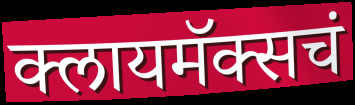
क्लायमॅक्सचं